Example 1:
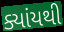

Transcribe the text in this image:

ક્યાંયથી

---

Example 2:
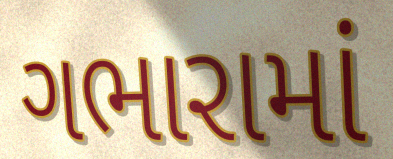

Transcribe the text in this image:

ગભારામાં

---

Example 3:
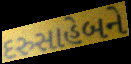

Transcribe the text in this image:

દરુસાહેબને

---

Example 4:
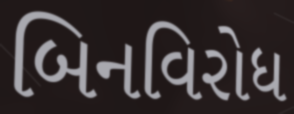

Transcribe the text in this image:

બિનવિરોધ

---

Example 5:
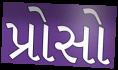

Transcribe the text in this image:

પ્રોસો